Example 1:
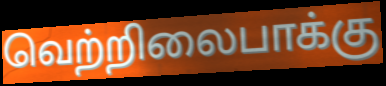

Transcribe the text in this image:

வெற்றிலைபாக்கு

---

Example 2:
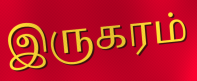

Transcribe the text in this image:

இருகரம்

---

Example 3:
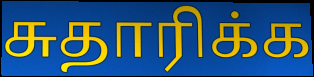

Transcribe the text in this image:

சுதாரிக்க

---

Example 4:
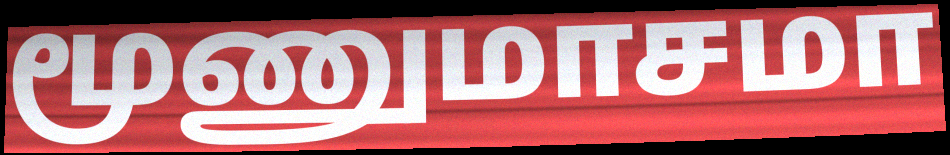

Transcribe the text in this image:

மூணுமாசமா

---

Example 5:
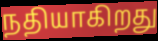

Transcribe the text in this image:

நதியாகிறது